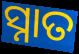
ସ୍ନାତ